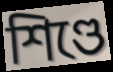
শিণ্ডে